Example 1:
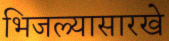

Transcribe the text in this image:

भिजल्यासारखे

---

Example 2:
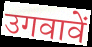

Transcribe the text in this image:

उगवावें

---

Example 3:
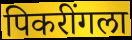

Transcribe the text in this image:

पिकरींगला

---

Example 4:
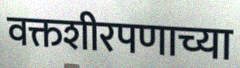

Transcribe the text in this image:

वक्तशीरपणाच्या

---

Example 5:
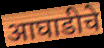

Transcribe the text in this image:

आघाडीचे